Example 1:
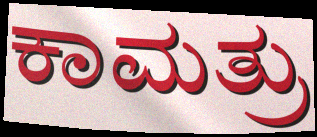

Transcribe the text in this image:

ಕಾಮತ್ರು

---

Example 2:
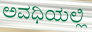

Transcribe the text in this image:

ಅವಧಿಯಲ್ಲಿ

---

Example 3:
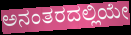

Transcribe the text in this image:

ಅನಂತರದಲ್ಲಿಯೇ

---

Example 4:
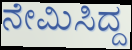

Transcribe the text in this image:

ನೇಮಿಸಿದ್ದ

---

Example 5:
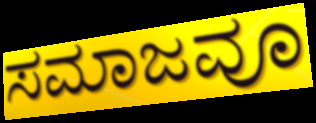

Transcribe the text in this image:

ಸಮಾಜವೂ